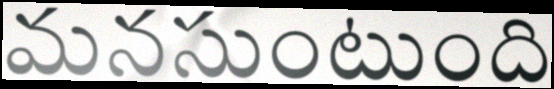
మనసుంటుంది